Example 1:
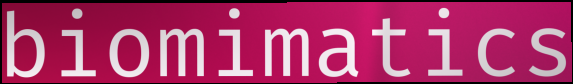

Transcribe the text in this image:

biomimatics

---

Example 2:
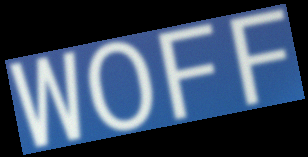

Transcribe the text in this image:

WOFF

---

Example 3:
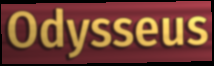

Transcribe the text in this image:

Odysseus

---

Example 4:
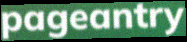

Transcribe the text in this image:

pageantry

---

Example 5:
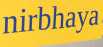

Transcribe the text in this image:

nirbhaya